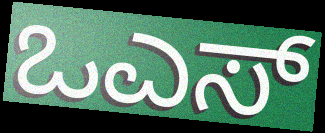
ಒಎಸ್